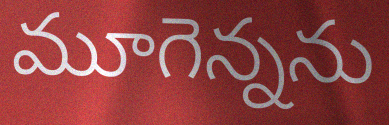
మూగెన్నను